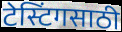
टेस्टिंगसाठी